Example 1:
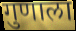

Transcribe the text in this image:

गुणाला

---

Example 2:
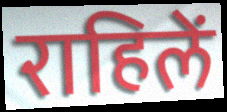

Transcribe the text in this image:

राहिलें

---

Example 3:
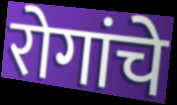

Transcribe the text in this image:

रोगांचे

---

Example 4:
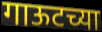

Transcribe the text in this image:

गाऊटच्या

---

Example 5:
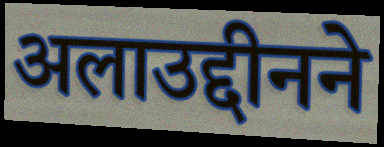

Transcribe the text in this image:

अलाउद्दीनने